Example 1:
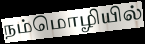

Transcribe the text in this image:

நம்மொழியில்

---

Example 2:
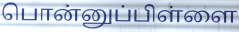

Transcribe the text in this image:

பொன்னுப்பிள்ளை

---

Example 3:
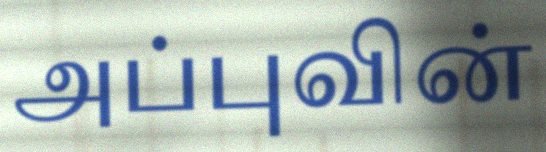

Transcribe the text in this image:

அப்புவின்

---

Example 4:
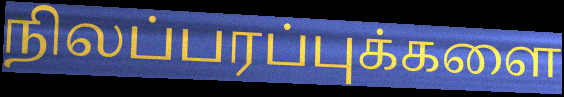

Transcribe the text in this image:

நிலப்பரப்புக்களை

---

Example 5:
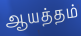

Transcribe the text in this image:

ஆயத்தம்